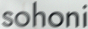
sohoni